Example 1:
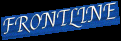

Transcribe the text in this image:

FRONTLINE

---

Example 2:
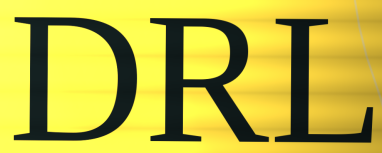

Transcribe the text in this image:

DRL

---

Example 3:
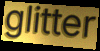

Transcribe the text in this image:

glitter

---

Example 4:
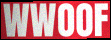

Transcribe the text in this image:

WWOOF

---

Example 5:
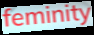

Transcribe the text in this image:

feminity